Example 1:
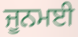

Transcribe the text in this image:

ਜੂਨਮਈ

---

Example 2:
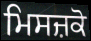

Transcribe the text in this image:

ਮਿਸਜ਼ਕੋ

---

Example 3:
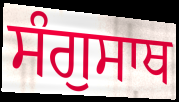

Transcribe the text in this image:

ਸੰਗੁਸਾਥ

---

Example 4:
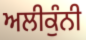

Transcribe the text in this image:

ਅਲੀਕੁੰਨੀ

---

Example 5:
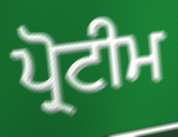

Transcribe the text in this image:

ਪ੍ਰੋਟੀਮ